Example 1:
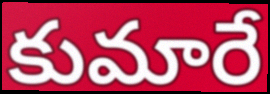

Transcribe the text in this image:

కుమారే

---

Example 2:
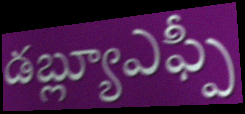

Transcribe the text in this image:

డబ్ల్యూఎఫ్పీ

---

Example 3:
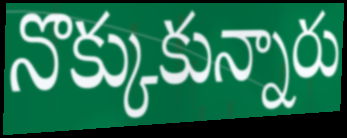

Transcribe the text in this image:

నొక్కుకున్నారు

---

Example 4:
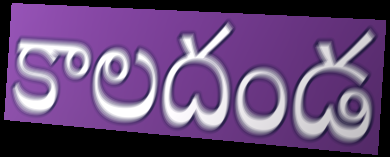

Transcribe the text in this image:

కాలదండ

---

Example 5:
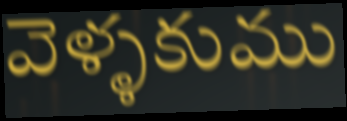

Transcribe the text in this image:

వెళ్ళకుము